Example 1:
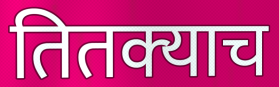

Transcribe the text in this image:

तितक्‍याच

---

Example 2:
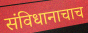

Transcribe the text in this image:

संविधानाचाच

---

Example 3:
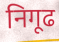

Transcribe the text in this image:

निगूढ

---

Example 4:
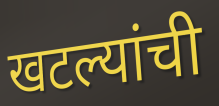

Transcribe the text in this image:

खटल्यांची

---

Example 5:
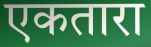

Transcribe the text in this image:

एकतारा